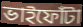
ভাইফোঁটা